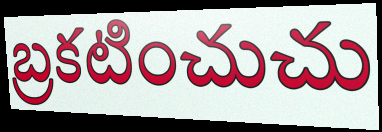
బ్రకటించుచు